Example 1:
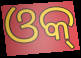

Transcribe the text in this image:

ଓକ୍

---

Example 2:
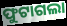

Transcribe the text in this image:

ଫୁଟାଗଲା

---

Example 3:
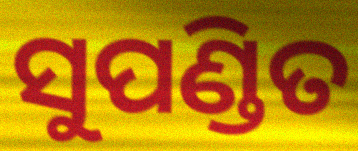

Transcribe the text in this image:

ସୁପଣ୍ଡିତ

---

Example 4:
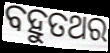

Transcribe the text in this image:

ବହୁତଥର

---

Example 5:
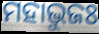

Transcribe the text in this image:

ମହାଭୁଜଃ